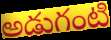
అడుగంటి